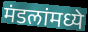
मंडलांमध्ये